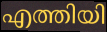
എത്തിയി